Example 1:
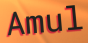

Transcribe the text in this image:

Amul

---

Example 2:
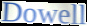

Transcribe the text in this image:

Dowell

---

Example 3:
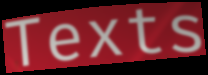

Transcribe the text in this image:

Texts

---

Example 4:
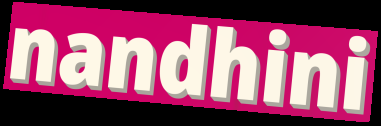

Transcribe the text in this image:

nandhini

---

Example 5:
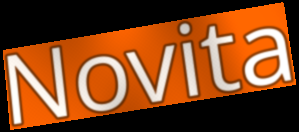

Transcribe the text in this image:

Novita